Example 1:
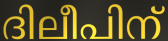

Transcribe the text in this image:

ദിലീപിന്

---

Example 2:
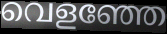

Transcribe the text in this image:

വെളഞ്ഞേ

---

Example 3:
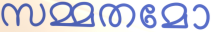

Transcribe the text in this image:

സമ്മതമോ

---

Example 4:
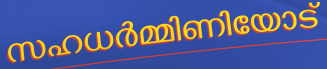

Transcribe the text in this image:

സഹധർമ്മിണിയോട്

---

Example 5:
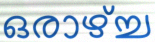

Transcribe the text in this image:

ഒരാഴ്ച്ച